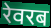
रेवरब